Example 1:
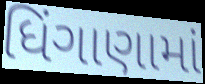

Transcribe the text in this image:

ધિંગાણામાં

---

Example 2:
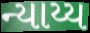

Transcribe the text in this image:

ન્યાય્ય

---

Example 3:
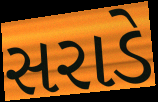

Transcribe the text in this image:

સરાડે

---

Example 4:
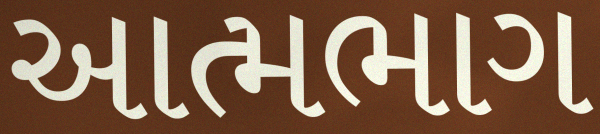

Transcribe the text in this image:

આત્મભાગ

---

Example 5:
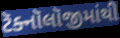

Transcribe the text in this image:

ટૅક્નૉલૉજીમાંથી